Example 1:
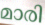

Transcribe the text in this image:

മാരി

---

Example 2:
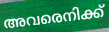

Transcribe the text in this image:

അവരെനിക്ക്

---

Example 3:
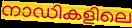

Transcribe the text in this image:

നാഡികളിലെ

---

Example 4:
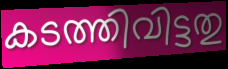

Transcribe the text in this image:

കടത്തിവിട്ടതു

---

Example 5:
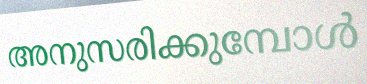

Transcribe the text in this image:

അനുസരിക്കുമ്പോൾ